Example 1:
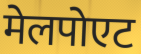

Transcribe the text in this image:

मेलपोएट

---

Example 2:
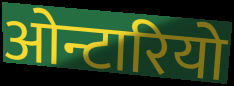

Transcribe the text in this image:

ओन्टारियो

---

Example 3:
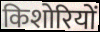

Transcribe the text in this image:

किशोरियों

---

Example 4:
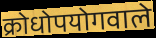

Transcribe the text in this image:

क्रोधोपयोगवाले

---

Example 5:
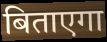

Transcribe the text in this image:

बिताएगा